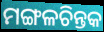
ମଙ୍ଗଳଚିନ୍ତକ